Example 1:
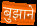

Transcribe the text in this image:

बुझाने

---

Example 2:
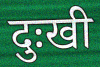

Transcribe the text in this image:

दुःखी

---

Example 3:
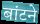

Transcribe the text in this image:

बांटने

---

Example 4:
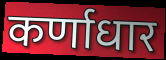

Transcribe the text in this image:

कर्णाधार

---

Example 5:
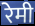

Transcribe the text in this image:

रेमी